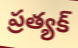
ప్రత్యక్